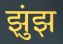
झुंझ